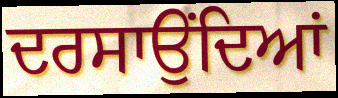
ਦਰਸਾਉਂਦਿਆਂ